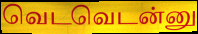
வெடவெடன்னு